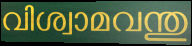
വിശ്വാമവന്തു